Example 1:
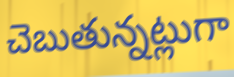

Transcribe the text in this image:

చెబుతున్నట్లుగా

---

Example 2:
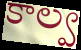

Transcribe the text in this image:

కాల్వ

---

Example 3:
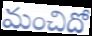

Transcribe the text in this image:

మంచిదో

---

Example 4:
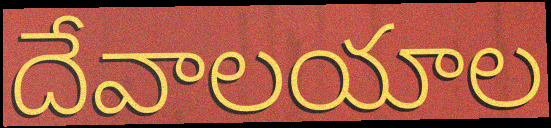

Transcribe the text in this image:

దేవాలయాల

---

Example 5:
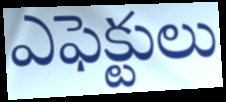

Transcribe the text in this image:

ఎఫెక్టులు